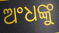
ଅଂଧଙ୍କୁ